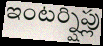
ఇంటర్న్షిప్లు